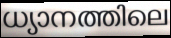
ധ്യാനത്തിലെ